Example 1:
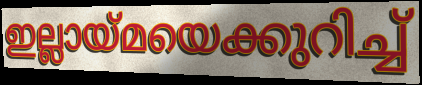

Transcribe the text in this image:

ഇല്ലായ്മയെക്കുറിച്ച്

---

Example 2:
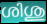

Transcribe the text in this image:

ശിശു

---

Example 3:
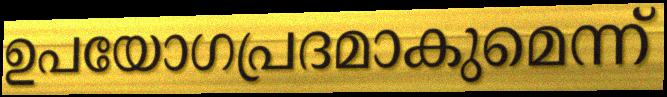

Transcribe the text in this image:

ഉപയോഗപ്രദമാകുമെന്ന്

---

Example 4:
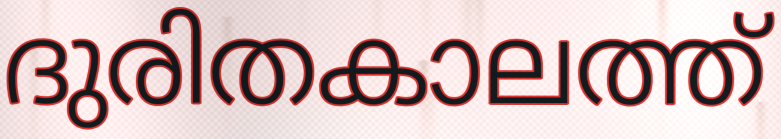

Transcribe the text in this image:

ദുരിതകാലത്ത്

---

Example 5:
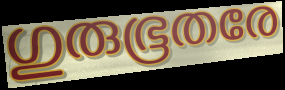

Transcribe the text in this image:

ഗുരുഭൂതരേ